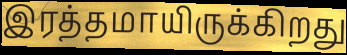
இரத்தமாயிருக்கிறது